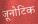
जूनोटिक